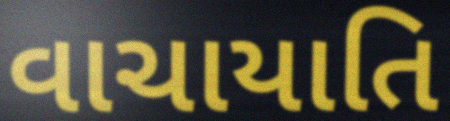
વાચાયાતિ